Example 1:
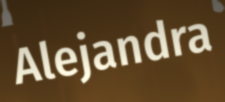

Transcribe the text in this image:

Alejandra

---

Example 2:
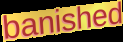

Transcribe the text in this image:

banished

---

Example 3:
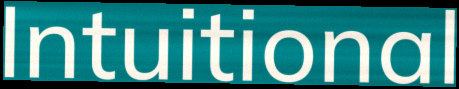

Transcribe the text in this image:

Intuitional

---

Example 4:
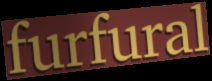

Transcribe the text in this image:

furfural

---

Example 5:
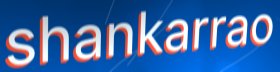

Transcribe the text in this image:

shankarrao